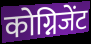
कोग्निजेंट